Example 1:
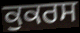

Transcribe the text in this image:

ਕੁਕਰਸ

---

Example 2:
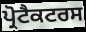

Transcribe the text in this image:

ਪ੍ਰੋਟੈਕਟਰਸ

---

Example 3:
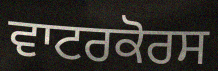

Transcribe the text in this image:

ਵਾਟਰਕੋਰਸ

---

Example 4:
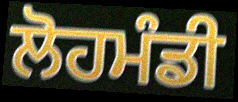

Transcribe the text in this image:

ਲੋਹਮੰਡੀ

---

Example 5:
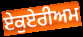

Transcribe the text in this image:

ਏਕੁਏਰੀਅਮ